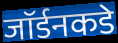
जॉर्डनकडे